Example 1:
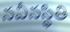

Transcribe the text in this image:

నవీనస్థితి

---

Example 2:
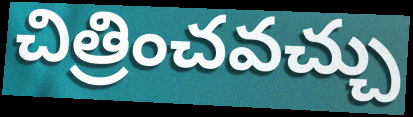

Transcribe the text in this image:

చిత్రించవచ్చు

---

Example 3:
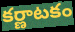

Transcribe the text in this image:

కర్ణాటకం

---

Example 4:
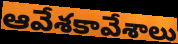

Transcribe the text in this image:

ఆవేశకావేశాలు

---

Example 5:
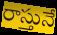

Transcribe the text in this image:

రాస్తునే